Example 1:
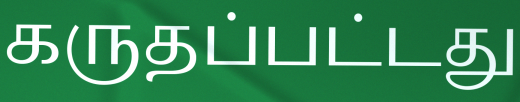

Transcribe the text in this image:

கருதப்பட்டது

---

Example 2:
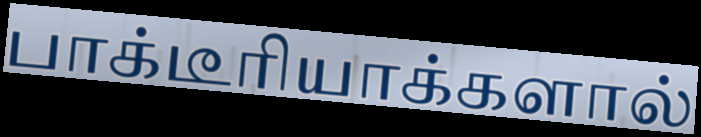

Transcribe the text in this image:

பாக்டீரியாக்களால்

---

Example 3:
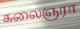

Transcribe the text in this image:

கலைஞரா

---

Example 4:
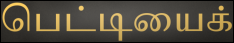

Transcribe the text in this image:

பெட்டியைக்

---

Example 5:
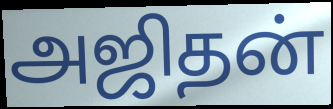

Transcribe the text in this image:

அஜிதன்